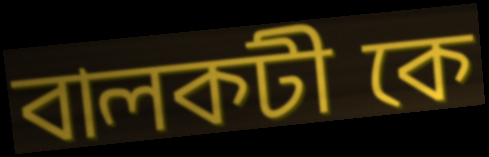
বালকটীকে